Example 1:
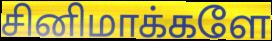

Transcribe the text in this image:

சினிமாக்களே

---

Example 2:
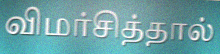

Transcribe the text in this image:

விமர்சித்தால்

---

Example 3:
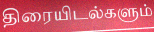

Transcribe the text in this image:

திரையிடல்களும்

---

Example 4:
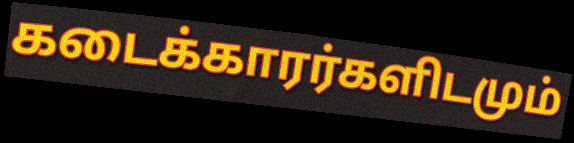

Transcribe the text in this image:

கடைக்காரர்களிடமும்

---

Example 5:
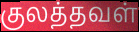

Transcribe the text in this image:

குலத்தவள்